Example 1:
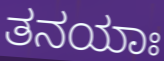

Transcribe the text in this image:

ತನಯಾಃ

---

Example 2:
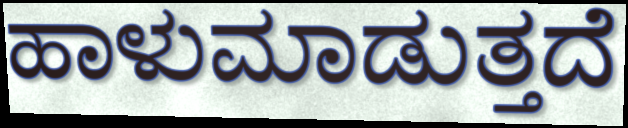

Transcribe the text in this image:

ಹಾಳುಮಾಡುತ್ತದೆ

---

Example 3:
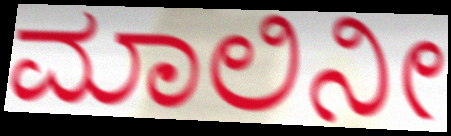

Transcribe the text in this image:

ಮಾಲಿನೀ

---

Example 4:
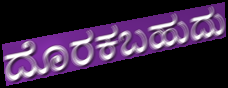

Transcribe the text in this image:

ದೊರಕಬಹುದು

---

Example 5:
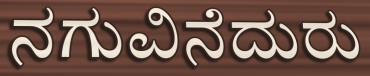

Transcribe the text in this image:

ನಗುವಿನೆದುರು